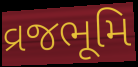
વ્રજભૂમિ